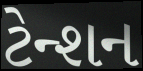
ટેન્શન